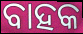
ବାହକ